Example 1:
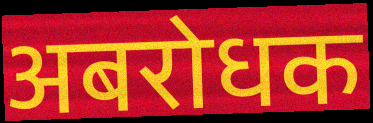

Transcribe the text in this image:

अबरोधक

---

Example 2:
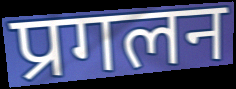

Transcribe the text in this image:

प्रगलन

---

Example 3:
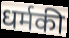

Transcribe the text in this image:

धर्मकी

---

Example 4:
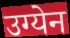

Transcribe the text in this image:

उग्येन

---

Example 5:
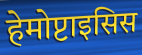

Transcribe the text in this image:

हेमोप्टाइसिस